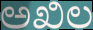
ಅಖಿಲ